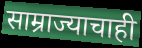
साम्राज्याचाही